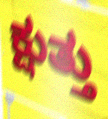
ಕ್ಷುತ್ತು